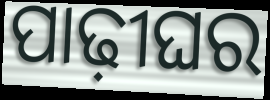
ପାଢ଼ୀଘର